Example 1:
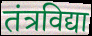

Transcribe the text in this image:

तंत्रविद्या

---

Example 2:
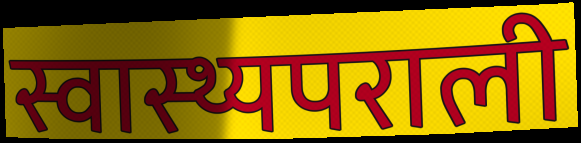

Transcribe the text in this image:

स्वास्थ्यपराली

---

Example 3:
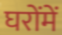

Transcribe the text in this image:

घरोंमें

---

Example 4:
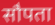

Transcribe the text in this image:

सौपता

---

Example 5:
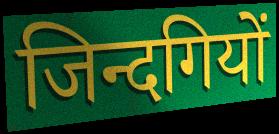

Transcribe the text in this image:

जिन्दगियों